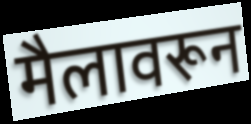
मैलावरून